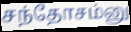
சந்தோசம்னு